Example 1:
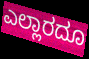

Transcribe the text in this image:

ಎಲ್ಲಾರದೂ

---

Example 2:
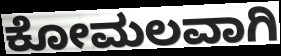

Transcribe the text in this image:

ಕೋಮಲವಾಗಿ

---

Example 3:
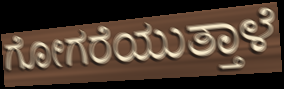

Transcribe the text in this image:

ಗೋಗರೆಯುತ್ತಾಳೆ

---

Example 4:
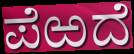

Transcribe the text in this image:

ಪೆಱದೆ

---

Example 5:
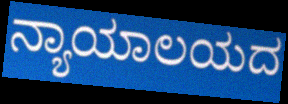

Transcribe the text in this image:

ನ್ಯಾಯಾಲಯದ